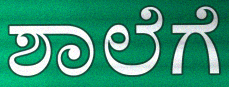
ಶಾಲೆಗೆ